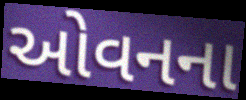
ઓવનના